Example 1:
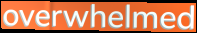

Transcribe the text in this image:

overwhelmed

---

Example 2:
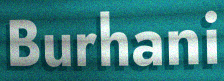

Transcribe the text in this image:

Burhani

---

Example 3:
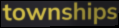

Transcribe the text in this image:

townships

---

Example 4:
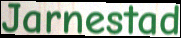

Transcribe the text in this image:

Jarnestad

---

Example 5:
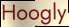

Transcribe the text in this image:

Hoogly